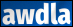
awdla